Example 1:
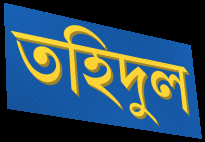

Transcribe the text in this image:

তহিদুল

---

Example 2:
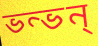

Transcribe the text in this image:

ভন্ভন্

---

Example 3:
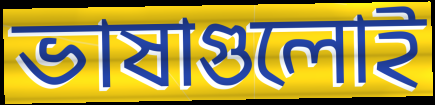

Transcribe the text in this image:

ভাষাগুলোই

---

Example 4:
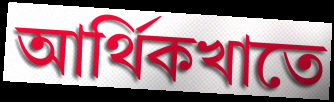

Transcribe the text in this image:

আর্থিকখাতে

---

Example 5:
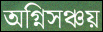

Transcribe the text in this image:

অগ্নিসঞ্চয়